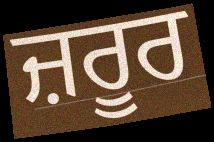
ਜ਼ਰੂਰ